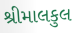
શ્રીમાલકુલ